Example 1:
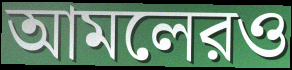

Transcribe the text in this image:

আমলেরও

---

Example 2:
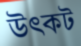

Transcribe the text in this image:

উৎকট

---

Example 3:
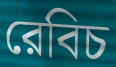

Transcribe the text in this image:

রেবিচ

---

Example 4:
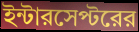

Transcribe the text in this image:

ইন্টারসেপ্টরের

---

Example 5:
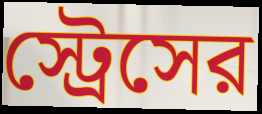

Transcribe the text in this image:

স্ট্রেসের